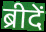
ब्रीदें